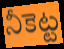
నీకెట్ట